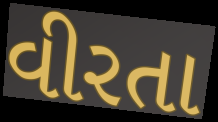
વીરતા